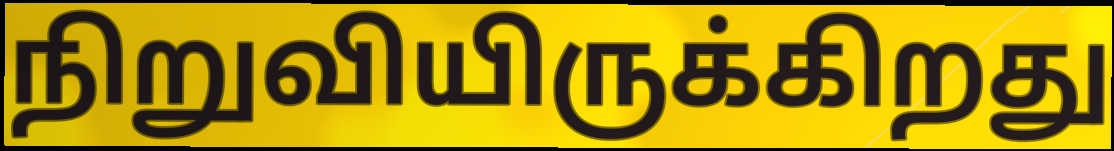
நிறுவியிருக்கிறது